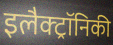
इलैक्ट्रॉनिकी